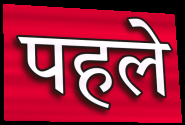
पहले